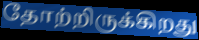
தோற்றிருக்கிறது